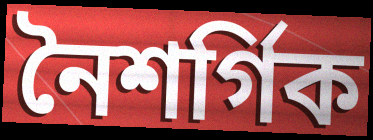
নৈশৰ্গিক